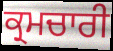
ਕ੍ਰਮਚਾਰੀ